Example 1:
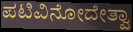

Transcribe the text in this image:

ಪಟಿವಿನೋದೇತ್ವಾ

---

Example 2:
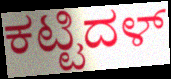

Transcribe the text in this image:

ಕಟ್ಟಿದಳ್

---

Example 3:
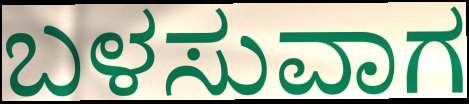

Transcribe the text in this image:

ಬಳಸುವಾಗ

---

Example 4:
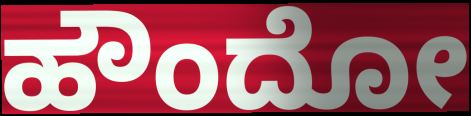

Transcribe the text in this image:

ಹೌಂದೋ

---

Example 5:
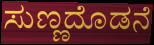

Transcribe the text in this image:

ಸುಣ್ಣದೊಡನೆ